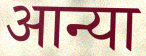
आन्या